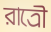
রাত্রৌ